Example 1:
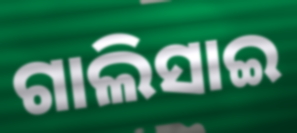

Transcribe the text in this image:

ଗାଲିସାଇ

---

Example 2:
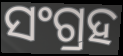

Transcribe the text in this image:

ସଂଗ୍ରହ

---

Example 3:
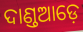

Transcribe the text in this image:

ଦାଣ୍ଡଆଡ଼େ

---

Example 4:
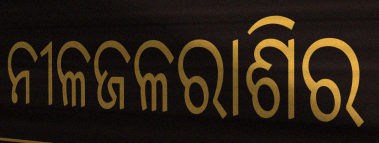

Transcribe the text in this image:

ନୀଳଜଳରାଶିର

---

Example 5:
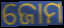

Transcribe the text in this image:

ଜୋମ